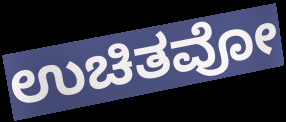
ಉಚಿತವೋ